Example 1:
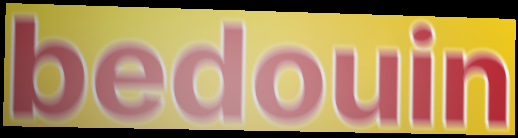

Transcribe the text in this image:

bedouin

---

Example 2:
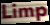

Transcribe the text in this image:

Limp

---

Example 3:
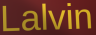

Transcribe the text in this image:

Lalvin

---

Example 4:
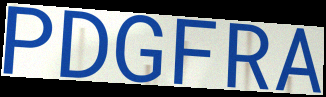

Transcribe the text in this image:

PDGFRA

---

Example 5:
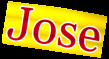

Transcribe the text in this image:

Jose